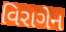
વિરાગેન